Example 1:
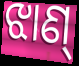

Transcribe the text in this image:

ଝାଣ୍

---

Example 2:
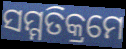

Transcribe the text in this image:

ସମ୍ମତିକ୍ରମେ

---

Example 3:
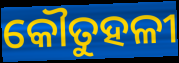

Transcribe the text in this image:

କୌତୁହଳୀ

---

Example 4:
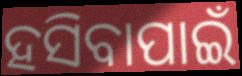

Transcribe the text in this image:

ହସିବାପାଇଁ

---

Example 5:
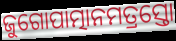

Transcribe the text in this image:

ଜୁଗୋପାତ୍ମାନମତ୍ରସ୍ତୋ